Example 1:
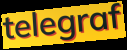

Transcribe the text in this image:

telegraf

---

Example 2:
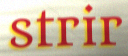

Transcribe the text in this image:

strir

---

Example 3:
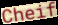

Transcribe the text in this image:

Cheif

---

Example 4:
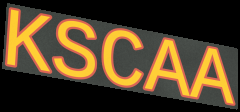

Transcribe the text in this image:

KSCAA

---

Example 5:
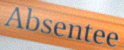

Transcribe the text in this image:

Absentee